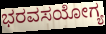
ಭರವಸಯೋಗ್ಯ